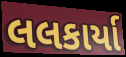
લલકાર્યા